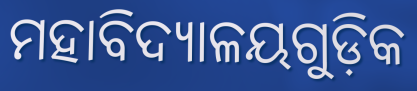
ମହାବିଦ୍ୟାଳୟଗୁଡ଼ିକ